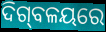
ଦିଗ୍‍ବଳୟରେ